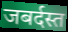
जबर्दस्त